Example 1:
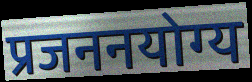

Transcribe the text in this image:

प्रजननयोग्य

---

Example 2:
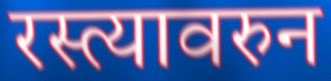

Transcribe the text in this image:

रस्त्यावरुन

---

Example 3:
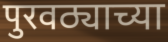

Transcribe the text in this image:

पुरवठ्याच्या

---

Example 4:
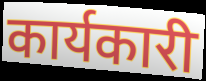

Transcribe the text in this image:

कार्यकारी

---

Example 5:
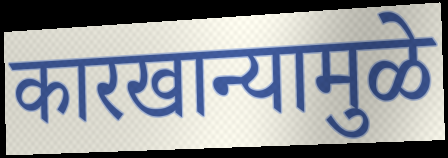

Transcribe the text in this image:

कारखान्यामुळे